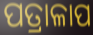
ପତ୍ରାଳାପ